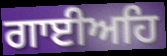
ਗਾਈਅਹਿ